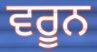
ਵਰੂਨ